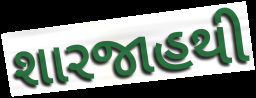
શારજાહથી